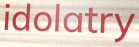
idolatry